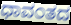
ಧಾವಂತದ